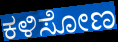
ಕಳಿಸೋಣ